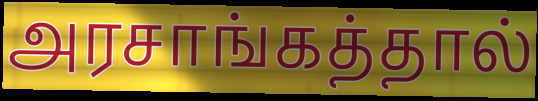
அரசாங்கத்தால்